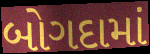
બોગદામાં